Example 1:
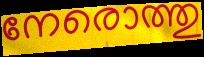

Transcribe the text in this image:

നേരൊത്തു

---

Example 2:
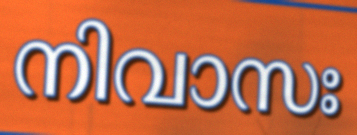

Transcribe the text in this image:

നിവാസഃ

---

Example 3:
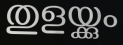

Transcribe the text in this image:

തുളയ്ക്കും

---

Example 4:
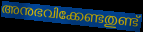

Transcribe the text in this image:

അനുഭവിക്കേണ്ടതുണ്ട്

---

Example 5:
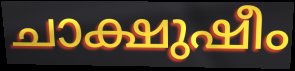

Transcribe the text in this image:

ചാക്ഷുഷീം